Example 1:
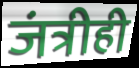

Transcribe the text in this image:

जंत्रीही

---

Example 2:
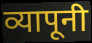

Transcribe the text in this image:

व्यापूनी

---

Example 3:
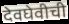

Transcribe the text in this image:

देवघेवीची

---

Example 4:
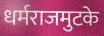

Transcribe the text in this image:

धर्मराजमुटके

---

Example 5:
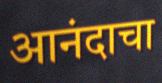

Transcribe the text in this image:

आनंदाचा